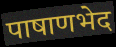
पाषाणभेद